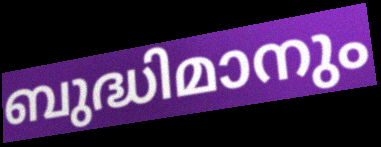
ബുദ്ധിമാനും